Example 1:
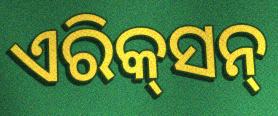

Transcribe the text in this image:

ଏରିକ୍‌ସନ୍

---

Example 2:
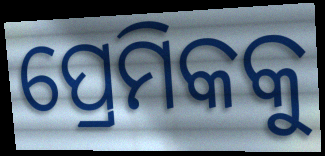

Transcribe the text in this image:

ପ୍ରେମିକକୁ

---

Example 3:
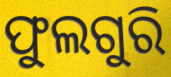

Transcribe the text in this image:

ଫୁଲଗୁରି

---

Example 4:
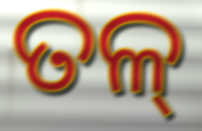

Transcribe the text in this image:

ତଳ୍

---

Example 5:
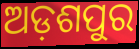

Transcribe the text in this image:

ଅଡ଼ଶପୁର